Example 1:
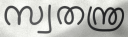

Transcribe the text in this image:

സ്വതന്ത്ര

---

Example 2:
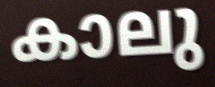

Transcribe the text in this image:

കാലു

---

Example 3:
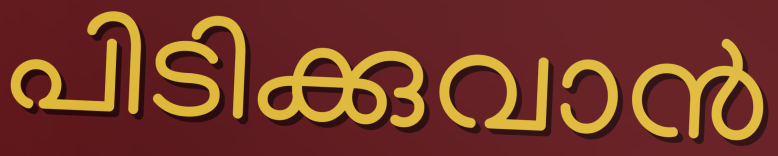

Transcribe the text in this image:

പിടിക്കുവാൻ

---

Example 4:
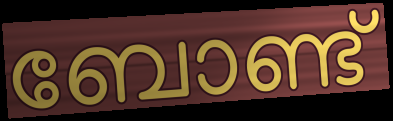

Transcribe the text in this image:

ബോണ്ട്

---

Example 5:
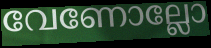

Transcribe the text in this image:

വേണോല്ലോ